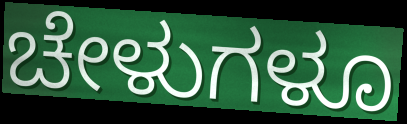
ಚೇಳುಗಳೂ